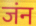
जंन